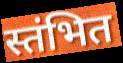
स्तंभित